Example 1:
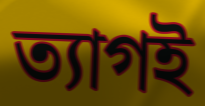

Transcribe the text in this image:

ত্যাগই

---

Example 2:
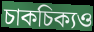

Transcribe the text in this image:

চাকচিক্যও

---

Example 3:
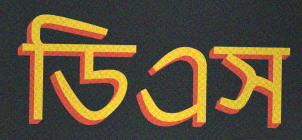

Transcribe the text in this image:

ডিএস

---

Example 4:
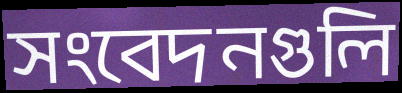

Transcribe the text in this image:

সংবেদনগুলি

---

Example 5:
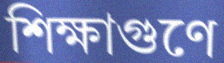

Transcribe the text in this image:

শিক্ষাগুণে